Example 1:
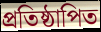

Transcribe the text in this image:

প্ৰতিষ্ঠাপিত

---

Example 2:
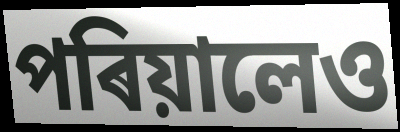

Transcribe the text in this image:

পৰিয়ালেও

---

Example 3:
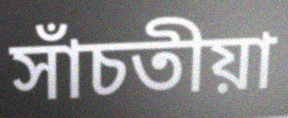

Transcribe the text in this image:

সাঁচতীয়া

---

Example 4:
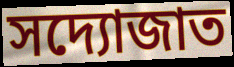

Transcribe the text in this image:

সদ্যোজাত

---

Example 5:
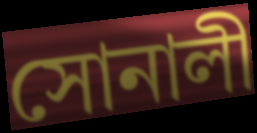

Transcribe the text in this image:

সোনালী